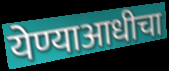
येण्याआधीचा